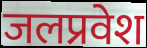
जलप्रवेश